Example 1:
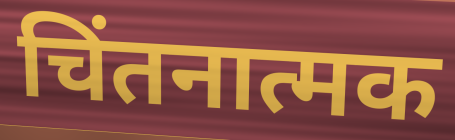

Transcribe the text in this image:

चिंतनात्मक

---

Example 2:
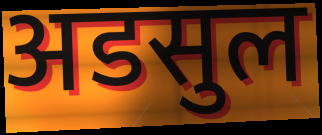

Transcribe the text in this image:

अडसुल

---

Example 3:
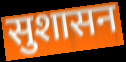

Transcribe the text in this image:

सुशासन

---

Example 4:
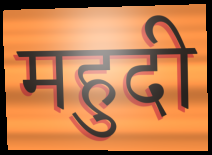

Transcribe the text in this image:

महुदी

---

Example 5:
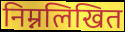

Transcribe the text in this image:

निम्नलिखित